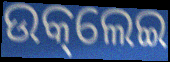
ଉକ୍‌ଲେଇ